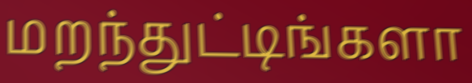
மறந்துட்டிங்களா